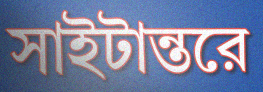
সাইটান্তরে